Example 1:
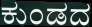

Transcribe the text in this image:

ಕುಂಡದ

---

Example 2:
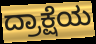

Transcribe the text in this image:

ದ್ರಾಕ್ಷೆಯ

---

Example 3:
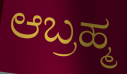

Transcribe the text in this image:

ಆಬ್ರಹ್ಮ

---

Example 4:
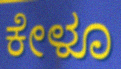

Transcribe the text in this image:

ಕೇಳೂ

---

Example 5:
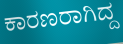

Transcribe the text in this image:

ಕಾರಣರಾಗಿದ್ದ